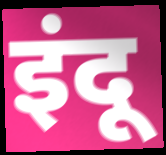
इंदू